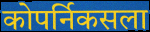
कोपर्निकसला